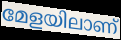
മേളയിലാണ്